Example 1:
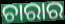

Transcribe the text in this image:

ଚାରାର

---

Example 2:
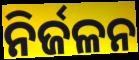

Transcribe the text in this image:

ନିର୍ଜଳନ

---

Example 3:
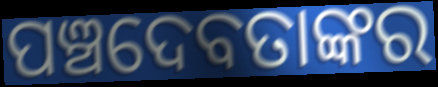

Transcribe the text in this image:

ପଞ୍ଚଦେବତାଙ୍କର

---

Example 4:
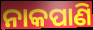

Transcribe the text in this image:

ନାକପାଣି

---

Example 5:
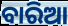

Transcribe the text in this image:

ବାରିଆ